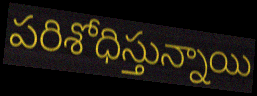
పరిశోధిస్తున్నాయి